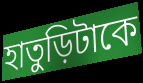
হাতুড়িটাকে